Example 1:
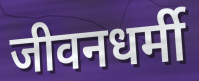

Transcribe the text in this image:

जीवनधर्मी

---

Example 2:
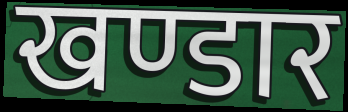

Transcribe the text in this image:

खण्डार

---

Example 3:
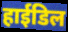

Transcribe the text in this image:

हाईडिल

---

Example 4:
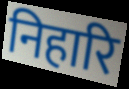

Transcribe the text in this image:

निहारि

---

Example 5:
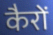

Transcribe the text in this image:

कैरों